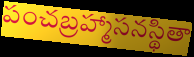
పంచబ్రహ్మాసనస్థితా